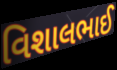
વિશાલભાઈ